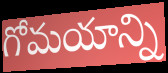
గోమయాన్ని